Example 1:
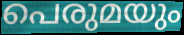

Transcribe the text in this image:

പെരുമയും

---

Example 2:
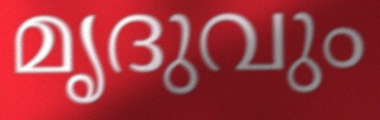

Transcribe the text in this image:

മൃദുവും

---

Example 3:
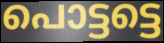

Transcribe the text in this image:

പൊട്ടട്ടെ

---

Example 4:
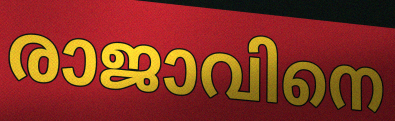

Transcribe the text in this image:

രാജാവിനെ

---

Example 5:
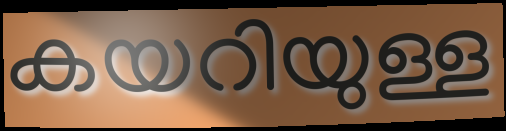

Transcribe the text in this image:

കയറിയുള്ള